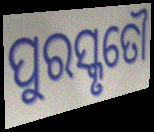
ପୁରସ୍କୃତୌ